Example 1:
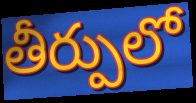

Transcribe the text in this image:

తీర్పులో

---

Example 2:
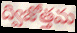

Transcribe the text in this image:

ద్విజోత్తమ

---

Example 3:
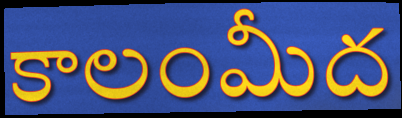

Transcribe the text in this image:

కాలంమీద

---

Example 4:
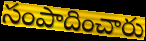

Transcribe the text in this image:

సంపాదించారు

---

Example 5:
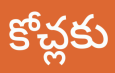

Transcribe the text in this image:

కోచ్లకు